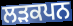
ਲੜਕਪਨ